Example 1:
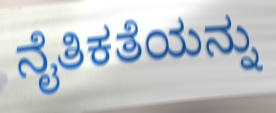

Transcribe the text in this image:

ನೈತಿಕತೆಯನ್ನು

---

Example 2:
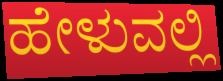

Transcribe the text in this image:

ಹೇಳುವಲ್ಲಿ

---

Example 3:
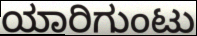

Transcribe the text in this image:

ಯಾರಿಗುಂಟು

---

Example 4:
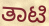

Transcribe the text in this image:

ತಾಟಿ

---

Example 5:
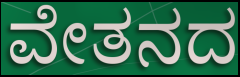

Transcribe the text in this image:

ವೇತನದ